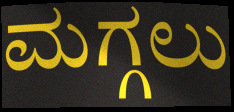
ಮಗ್ಗಲು